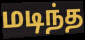
மடிந்த